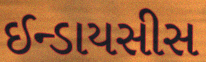
ઈન્ડાયસીસ